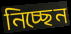
নিচ্ছেন